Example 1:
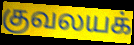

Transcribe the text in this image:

குவலயக்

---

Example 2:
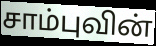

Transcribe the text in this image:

சாம்புவின்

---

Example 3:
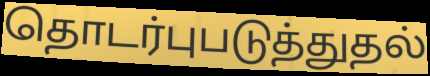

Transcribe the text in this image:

தொடர்புபடுத்துதல்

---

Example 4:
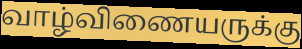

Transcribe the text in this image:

வாழ்விணையருக்கு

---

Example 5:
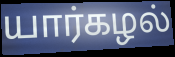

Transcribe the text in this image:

யார்கழல்